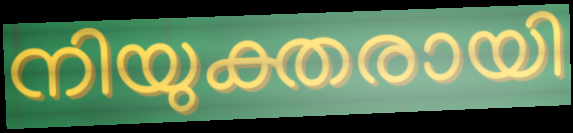
നിയുക്തരായി